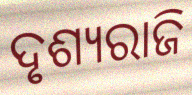
ଦୃଶ୍ୟରାଜି